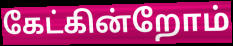
கேட்கின்றோம்